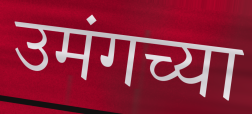
उमंगच्या